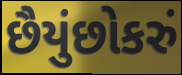
છૈયુંછોકરું